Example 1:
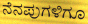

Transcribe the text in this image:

ನೆನಪುಗಳಿಗೂ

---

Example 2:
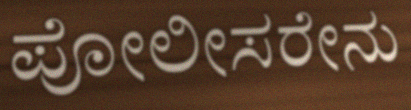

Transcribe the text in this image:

ಪೋಲೀಸರೇನು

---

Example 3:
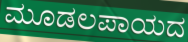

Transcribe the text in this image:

ಮೂಡಲಪಾಯದ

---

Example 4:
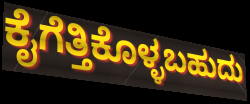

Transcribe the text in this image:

ಕೈಗೆತ್ತಿಕೊಳ್ಳಬಹುದು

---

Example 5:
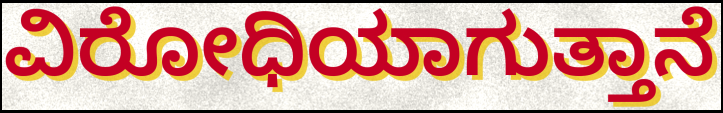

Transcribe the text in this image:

ವಿರೋಧಿಯಾಗುತ್ತಾನೆ